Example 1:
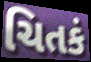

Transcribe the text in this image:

ચિતકં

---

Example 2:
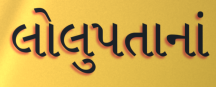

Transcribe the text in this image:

લોલુપતાનાં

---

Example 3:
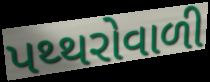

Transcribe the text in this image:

પથ્થરોવાળી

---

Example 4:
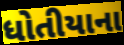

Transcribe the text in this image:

ધોતીયાના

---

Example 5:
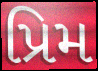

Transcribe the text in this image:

પ્રિમ